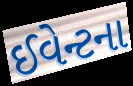
ઈવેન્ટના